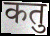
कतु